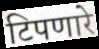
टिपणारे